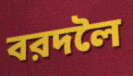
বরদলৈ